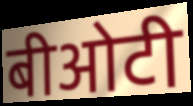
बीओटी